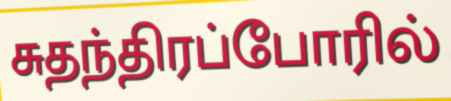
சுதந்திரப்போரில்